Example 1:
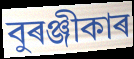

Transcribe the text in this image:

বুৰঞ্জীকাৰ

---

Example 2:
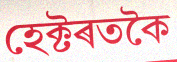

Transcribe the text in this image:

হেক্টৰতকৈ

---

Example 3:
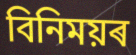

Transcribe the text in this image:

বিনিময়ৰ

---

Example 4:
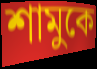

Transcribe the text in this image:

শামুকে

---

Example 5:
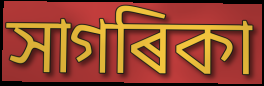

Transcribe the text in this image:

সাগৰিকা